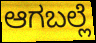
ಆಗಬಲ್ಲೆ